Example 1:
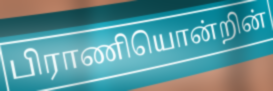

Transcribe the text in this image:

பிராணியொன்றின்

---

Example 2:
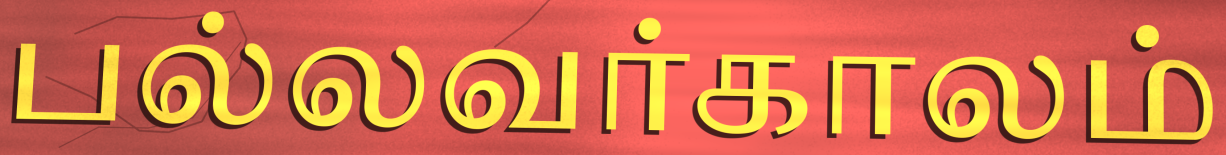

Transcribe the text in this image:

பல்லவர்காலம்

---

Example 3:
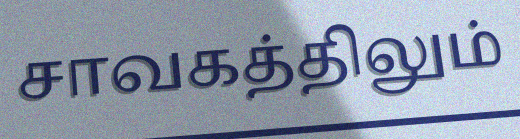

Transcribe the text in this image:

சாவகத்திலும்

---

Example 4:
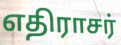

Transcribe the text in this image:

எதிராசர்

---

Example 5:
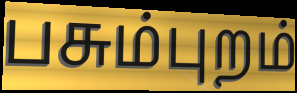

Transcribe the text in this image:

பசும்புறம்